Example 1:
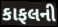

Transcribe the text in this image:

કાફલની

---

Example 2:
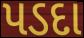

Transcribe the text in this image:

પડદા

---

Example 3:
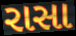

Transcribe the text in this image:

રાસા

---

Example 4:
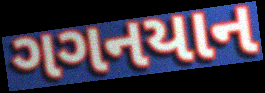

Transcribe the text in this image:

ગગનયાન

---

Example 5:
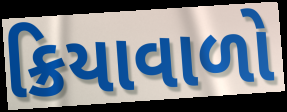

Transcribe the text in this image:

ક્રિયાવાળો